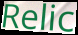
Relic